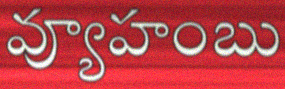
వ్యూహంబు